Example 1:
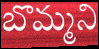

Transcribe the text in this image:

బొమ్మని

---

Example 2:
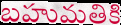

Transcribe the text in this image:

బహుమతికి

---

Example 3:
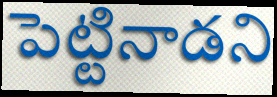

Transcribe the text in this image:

పెట్టినాడని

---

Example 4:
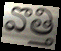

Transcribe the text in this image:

వొత్తి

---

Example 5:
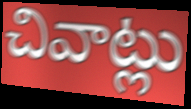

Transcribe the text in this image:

చివాట్లు